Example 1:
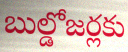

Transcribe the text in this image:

బుల్డోజర్లకు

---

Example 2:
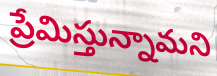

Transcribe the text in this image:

ప్రేమిస్తున్నామని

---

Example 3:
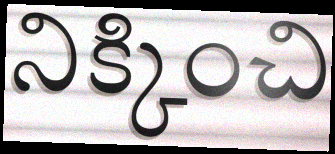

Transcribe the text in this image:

నిక్కించి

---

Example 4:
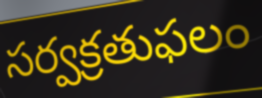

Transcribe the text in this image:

సర్వక్రతుఫలం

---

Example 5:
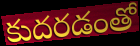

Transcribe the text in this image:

కుదరడంతో